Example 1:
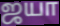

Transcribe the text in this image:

ஜயா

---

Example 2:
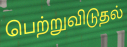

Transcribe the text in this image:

பெற்றுவிடுதல்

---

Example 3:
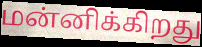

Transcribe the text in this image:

மன்னிக்கிறது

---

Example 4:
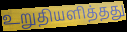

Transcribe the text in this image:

உறுதியளித்தது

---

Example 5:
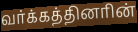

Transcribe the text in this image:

வர்க்கத்தினரின்